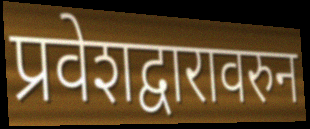
प्रवेशद्वारावरुन